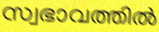
സ്വഭാവത്തിൽ